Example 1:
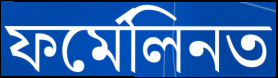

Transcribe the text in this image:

ফৰ্মেলিনত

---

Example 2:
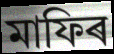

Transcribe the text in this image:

মাফিৰ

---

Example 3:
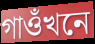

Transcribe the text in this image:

গাওঁখনে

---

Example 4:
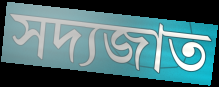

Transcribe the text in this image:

সদ্যজাত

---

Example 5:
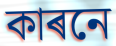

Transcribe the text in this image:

কাৰনে